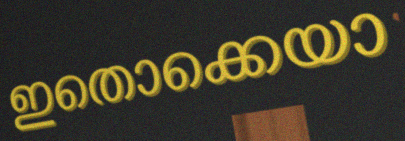
ഇതൊക്കെയാ